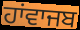
ਹਾਂਵਾਜਬ